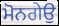
ਮੋਨਗੇਉ